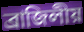
ব্রাজিলীয়